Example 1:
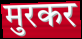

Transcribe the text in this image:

मुरकर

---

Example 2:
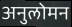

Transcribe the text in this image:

अनुलोमन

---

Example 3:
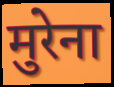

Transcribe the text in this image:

मुरेना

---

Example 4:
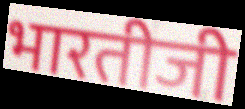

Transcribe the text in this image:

भारतीजी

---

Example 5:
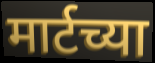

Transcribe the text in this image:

मार्टच्या